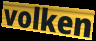
volken